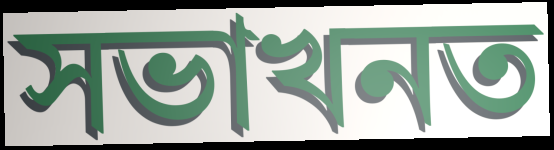
সভাখনত